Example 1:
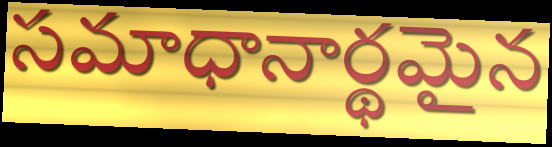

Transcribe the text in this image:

సమాధానార్థమైన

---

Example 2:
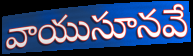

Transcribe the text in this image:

వాయుసూనవే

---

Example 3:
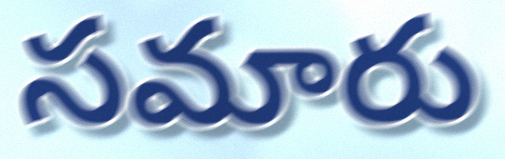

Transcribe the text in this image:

సమారు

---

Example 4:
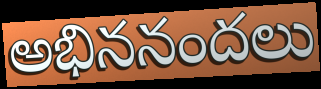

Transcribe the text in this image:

అభిననందలు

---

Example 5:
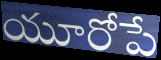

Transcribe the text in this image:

యూరోపే